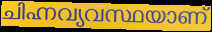
ചിഹ്നവ്യവസ്ഥയാണ്